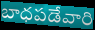
బాధపడేవారి